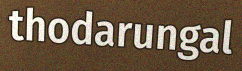
thodarungal